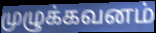
முழுக்கவனம்